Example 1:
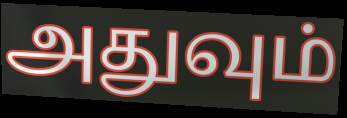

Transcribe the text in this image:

அதுவும்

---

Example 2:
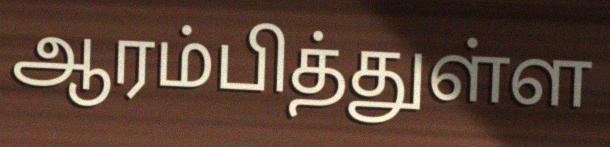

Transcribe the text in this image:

ஆரம்பித்துள்ள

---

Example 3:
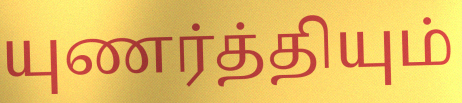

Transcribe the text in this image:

யுணர்த்தியும்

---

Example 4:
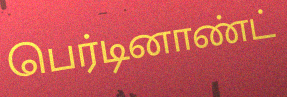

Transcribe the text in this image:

பெர்டினாண்ட்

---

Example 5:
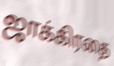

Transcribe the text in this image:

ஜாக்கிரதை